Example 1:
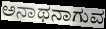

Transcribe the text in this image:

ಅನಾಥನಾಗುವ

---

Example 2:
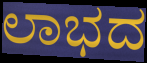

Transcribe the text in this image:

ಲಾಭದ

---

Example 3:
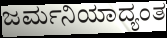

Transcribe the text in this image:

ಜರ್ಮನಿಯಾದ್ಯಂತ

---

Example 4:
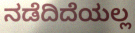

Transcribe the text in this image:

ನಡೆದಿದೆಯಲ್ಲ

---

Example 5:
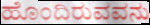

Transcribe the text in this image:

ಹೊಂದಿರುವವನು